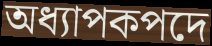
অধ্যাপকপদে